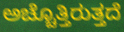
ಅಚ್ಚೊತ್ತಿರುತ್ತದೆ